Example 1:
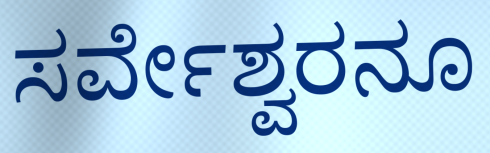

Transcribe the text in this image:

ಸರ್ವೇಶ್ವರನೂ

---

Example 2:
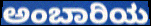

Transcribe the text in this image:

ಅಂಬಾರಿಯ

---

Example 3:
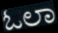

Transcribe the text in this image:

ಓಲಾ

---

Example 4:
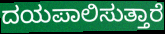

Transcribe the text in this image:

ದಯಪಾಲಿಸುತ್ತಾರೆ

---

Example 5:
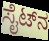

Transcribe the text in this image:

ಸೈಟ್‌ನ